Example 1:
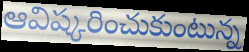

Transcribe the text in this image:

ఆవిష్కరించుకుంటున్న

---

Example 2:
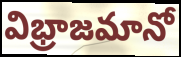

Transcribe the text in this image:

విభ్రాజమానో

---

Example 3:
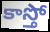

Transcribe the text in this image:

కాస్తో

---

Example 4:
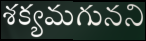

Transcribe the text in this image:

శక్యమగునని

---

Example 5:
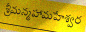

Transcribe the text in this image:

శ్రీమన్మహామహేశ్వర